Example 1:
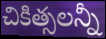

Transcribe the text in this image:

చికిత్సలన్నీ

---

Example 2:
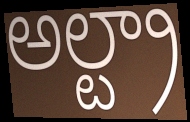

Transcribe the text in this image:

అల్ట్రా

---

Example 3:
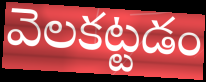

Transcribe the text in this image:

వెలకట్టడం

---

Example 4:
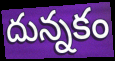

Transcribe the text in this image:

దున్నకం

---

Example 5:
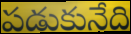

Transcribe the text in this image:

పడుకునేది